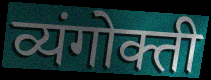
व्यंगोक्ती